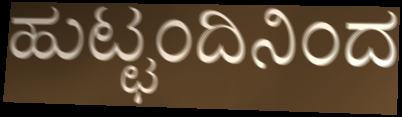
ಹುಟ್ಟಂದಿನಿಂದ